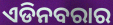
ଏଡିନବରାର